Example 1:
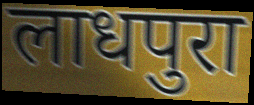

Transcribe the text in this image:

लाधपुरा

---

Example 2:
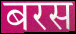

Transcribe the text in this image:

बरस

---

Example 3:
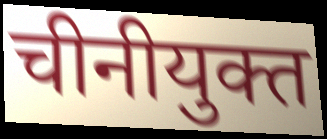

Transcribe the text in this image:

चीनीयुक्त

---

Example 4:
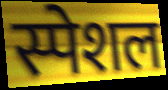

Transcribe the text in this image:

स्‍पेशल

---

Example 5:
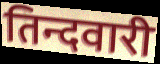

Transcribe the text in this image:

तिन्दवारी